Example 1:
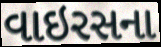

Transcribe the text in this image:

વાઇરસના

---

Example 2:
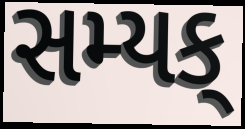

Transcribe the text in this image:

સમ્યક્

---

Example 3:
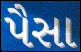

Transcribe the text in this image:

પૈસા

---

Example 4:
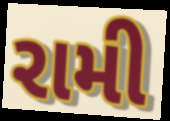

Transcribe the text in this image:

રામી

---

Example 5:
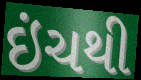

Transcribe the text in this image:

ઇંચથી